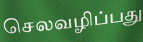
செலவழிப்பது